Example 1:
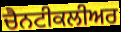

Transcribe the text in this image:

ਚੈਨਟੀਕਲੀਅਰ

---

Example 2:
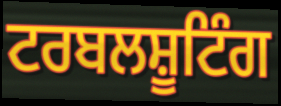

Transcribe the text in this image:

ਟਰਬਲਸ਼ੂਟਿੰਗ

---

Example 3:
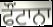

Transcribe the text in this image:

ਫੌਂਟਾਨਾ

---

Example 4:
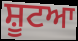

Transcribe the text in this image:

ਸ਼ੂਟਆ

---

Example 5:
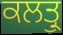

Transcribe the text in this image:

ਕਲਤ੍ਰੁ